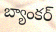
బ్యాంకర్